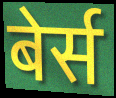
बेर्स